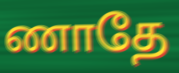
ணாதே